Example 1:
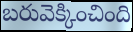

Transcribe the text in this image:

బరువెక్కించింది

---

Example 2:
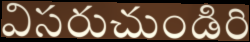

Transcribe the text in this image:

విసరుచుండిరి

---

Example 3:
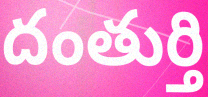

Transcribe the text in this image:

దంతుర్తి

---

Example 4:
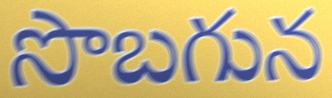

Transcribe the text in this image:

సొబగున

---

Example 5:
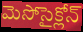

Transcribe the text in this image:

మెసోసైక్లోన్